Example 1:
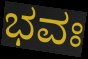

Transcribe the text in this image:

ಭವಃ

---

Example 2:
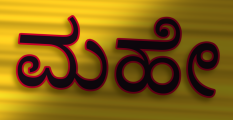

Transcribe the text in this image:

ಮಹೇ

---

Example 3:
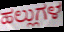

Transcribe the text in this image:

ಹಲ್ಲುಗಳ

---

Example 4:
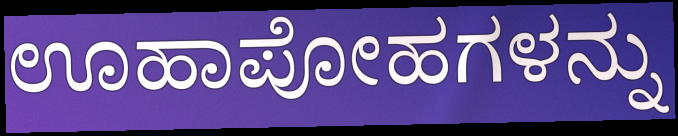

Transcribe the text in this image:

ಊಹಾಪೋಹಗಳನ್ನು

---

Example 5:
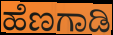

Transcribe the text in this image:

ಹೆಣಗಾಡಿ